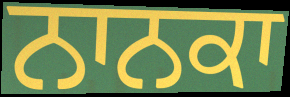
ਨਾਨਕਾ